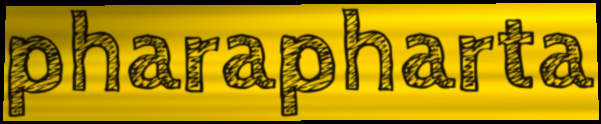
pharapharta